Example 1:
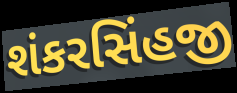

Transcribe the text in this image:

શંકરસિંહજી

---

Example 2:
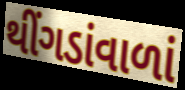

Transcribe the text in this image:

થીંગડાંવાળાં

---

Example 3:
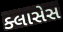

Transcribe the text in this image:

ક્લાસેસ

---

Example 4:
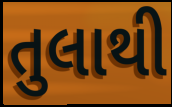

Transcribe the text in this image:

તુલાથી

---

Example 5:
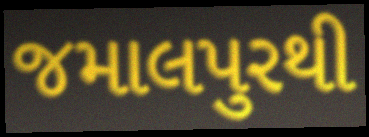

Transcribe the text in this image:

જમાલપુરથી